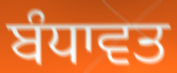
ਬੰਧਾਵਤ